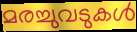
മരച്ചുവടുകൾ